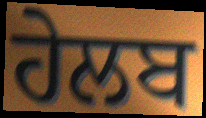
ਹੇਲਬ